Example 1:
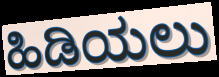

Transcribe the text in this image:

ಹಿಡಿಯಲು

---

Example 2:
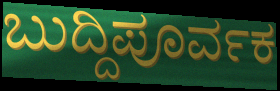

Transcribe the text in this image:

ಬುದ್ದಿಪೂರ್ವಕ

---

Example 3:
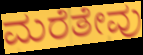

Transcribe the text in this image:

ಮರೆತೇವು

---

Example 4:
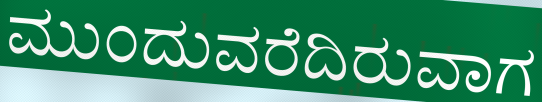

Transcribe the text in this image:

ಮುಂದುವರೆದಿರುವಾಗ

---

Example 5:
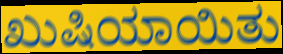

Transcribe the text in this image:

ಖುಷಿಯಾಯಿತು